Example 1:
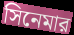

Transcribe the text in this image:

সিনেমার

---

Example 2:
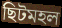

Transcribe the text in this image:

ছিটমহল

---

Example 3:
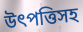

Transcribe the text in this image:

উৎপত্তিসহ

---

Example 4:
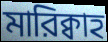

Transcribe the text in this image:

মারিক্বাহ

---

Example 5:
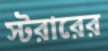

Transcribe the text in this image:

স্টরারের